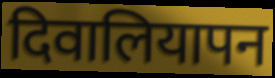
दिवालियापन